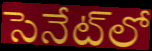
సెనేట్‌లో